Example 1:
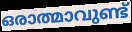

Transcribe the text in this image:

ഒരാത്മാവുണ്ട്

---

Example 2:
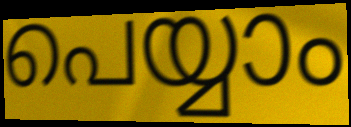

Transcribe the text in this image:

പെയ്യാം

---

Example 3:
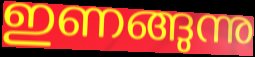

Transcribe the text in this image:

ഇണങ്ങുന്നു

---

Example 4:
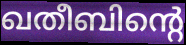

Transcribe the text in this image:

ഖതീബിന്റെ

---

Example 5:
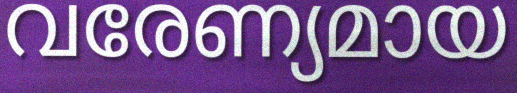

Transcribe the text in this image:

വരേണ്യമായ